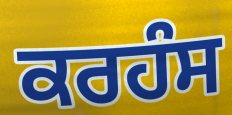
ਕਰਹੰਸ